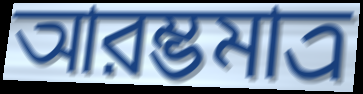
আরম্ভমাত্র